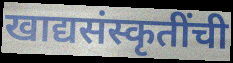
खाद्यसंस्कृतींची